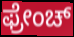
ಫ್ರೇಂಚ್